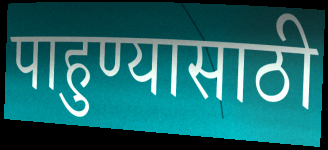
पाहुण्यासाठी